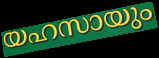
യഹസായും